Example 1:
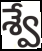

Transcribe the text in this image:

శ్వే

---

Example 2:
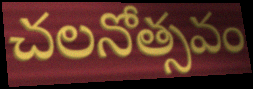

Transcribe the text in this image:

చలనోత్సవం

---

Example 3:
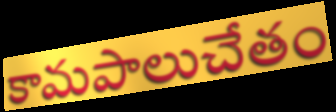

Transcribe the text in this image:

కామపాలుచేతం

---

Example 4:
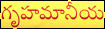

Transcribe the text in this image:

గృహమానీయ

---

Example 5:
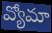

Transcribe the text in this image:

వ్యోమా